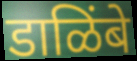
डाळिंबे